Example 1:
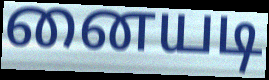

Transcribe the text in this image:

னையடி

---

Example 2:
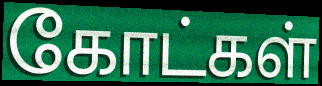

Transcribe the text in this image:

கோட்கள்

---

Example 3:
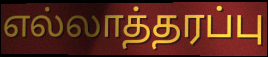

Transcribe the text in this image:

எல்லாத்தரப்பு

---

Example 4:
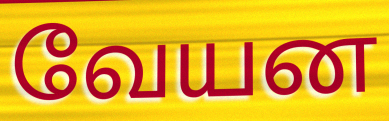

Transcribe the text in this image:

வேயன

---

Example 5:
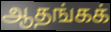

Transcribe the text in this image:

ஆதங்கக்